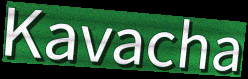
Kavacha